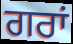
ਗਰਾਂ